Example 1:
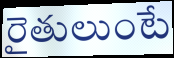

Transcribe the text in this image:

రైతులుంటే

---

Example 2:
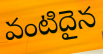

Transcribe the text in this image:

వంటిదైన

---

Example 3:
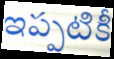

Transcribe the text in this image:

ఇప్పటికీ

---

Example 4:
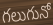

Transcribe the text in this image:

గలుగునో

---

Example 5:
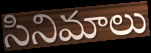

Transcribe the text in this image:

సినిమాలు